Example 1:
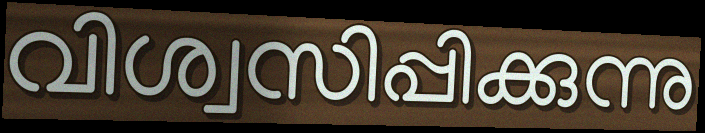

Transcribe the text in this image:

വിശ്വസിപ്പിക്കുന്നു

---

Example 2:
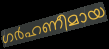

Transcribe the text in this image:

ഗർഹണീമായ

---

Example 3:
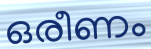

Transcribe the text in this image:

ഒരീണം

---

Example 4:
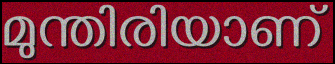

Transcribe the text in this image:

മുന്തിരിയാണ്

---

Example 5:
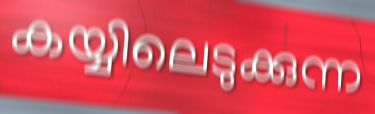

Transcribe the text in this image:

കയ്യിലെടുക്കുന്ന